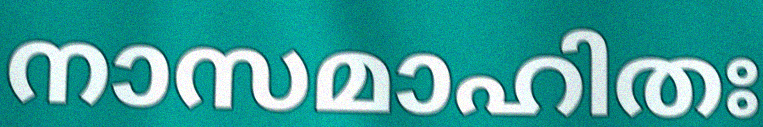
നാസമാഹിതഃ